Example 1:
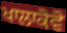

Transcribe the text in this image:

ਖਾਲਾਕੋਵੋ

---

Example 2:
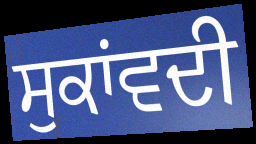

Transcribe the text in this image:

ਸੁਕਾਂਵਦੀ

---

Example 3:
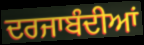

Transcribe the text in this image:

ਦਰਜਾਬੰਦੀਆਂ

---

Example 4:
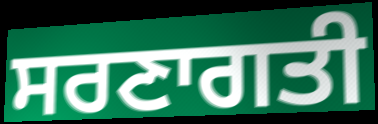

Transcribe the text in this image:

ਸਰਣਾਗਤੀ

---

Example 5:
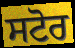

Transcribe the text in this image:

ਸਟੋਰ